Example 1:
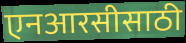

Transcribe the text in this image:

एनआरसीसाठी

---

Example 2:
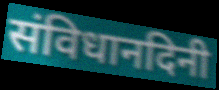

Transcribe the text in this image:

संविधानदिनी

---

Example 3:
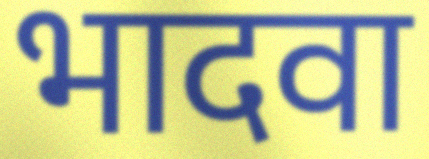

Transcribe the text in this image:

भादवा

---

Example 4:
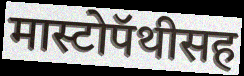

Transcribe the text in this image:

मास्टोपॅथीसह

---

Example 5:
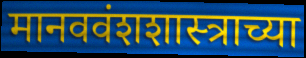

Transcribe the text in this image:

मानववंशशास्त्राच्या